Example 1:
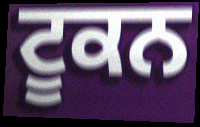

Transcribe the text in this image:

ਟੂਕਨ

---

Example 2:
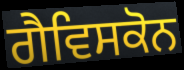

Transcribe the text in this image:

ਗੈਵਿਸਕੋਨ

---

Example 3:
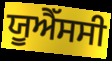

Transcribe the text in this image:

ਯੂਐੱਸਸੀ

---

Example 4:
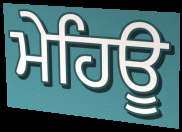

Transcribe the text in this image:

ਮੇਹਿਊ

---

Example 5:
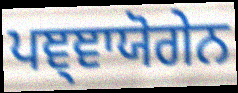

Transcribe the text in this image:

ਪਞ੍ਞਾਯੋਗੇਨ